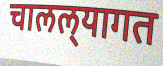
चालल्यागत